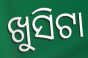
ଖୁସିଟା